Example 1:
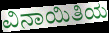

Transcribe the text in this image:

ವಿನಾಯಿತಿಯ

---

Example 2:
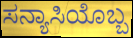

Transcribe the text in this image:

ಸನ್ಯಾಸಿಯೊಬ್ಬ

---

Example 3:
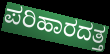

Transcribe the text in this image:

ಪರಿಹಾರದತ್ತ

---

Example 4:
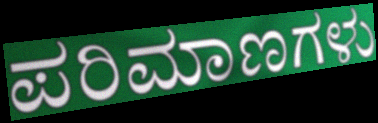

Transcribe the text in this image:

ಪರಿಮಾಣಗಳು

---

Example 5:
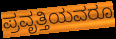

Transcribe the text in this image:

ಪ್ರವೃತ್ತಿಯವರೂ